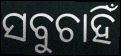
ସବୁଚାହିଁ